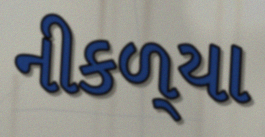
નીકળ્‌યા